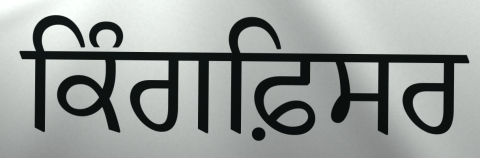
ਕਿੰਗਫ਼ਿਸਰ